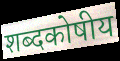
शब्दकोषीय